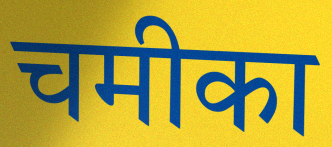
चमीका